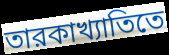
তারকাখ্যাতিতে